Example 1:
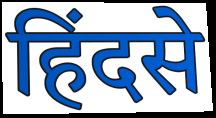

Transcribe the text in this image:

हिंदसे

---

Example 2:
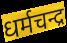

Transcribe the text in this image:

धर्मचन्द्र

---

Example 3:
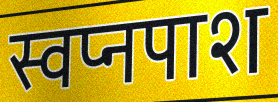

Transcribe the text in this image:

स्वप्नपाश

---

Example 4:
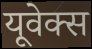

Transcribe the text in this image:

यूवेक्स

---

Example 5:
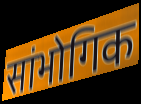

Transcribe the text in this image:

सांभोगिक